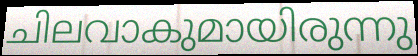
ചിലവാകുമായിരുന്നു